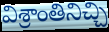
విశ్రాంతినిచ్చి